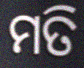
ମତି